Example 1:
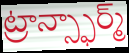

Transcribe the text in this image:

ట్రాన్స్ఫార్మ్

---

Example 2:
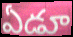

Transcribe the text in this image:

ఏడూ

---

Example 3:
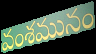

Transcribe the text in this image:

వంశమునం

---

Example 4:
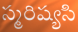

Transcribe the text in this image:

స్మరిష్యసి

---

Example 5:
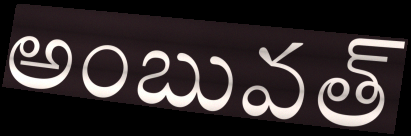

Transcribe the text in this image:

అంబువత్